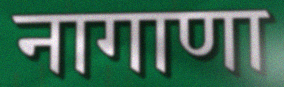
नागाणा